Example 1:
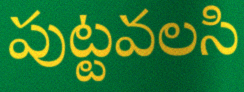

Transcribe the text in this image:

పుట్టవలసి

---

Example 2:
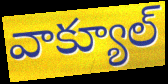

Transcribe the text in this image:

వాక్యూల్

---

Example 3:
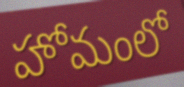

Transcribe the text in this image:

హోమంలో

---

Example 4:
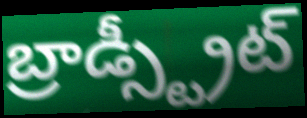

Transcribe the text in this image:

బ్రాడ్స్ట్రీట్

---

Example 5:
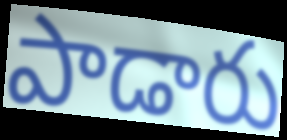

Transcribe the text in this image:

పాడారు